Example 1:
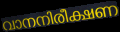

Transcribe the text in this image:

വാനനിരീക്ഷണ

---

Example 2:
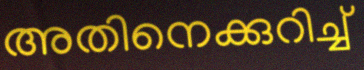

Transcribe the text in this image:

അതിനെക്കുറിച്ച്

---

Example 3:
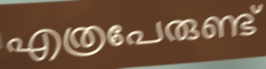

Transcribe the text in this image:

എത്രപേരുണ്ട്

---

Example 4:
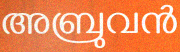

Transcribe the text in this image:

അബ്രുവൻ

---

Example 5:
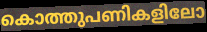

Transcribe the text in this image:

കൊത്തുപണികളിലോ